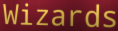
Wizards